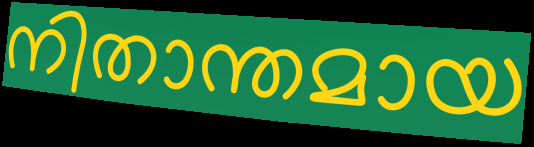
നിതാന്തമായ